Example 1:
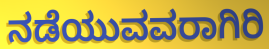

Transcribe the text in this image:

ನಡೆಯುವವರಾಗಿರಿ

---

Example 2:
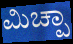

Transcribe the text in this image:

ಮಿಚ್ಪಾ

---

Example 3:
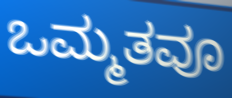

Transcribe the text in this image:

ಒಮ್ಮತವೂ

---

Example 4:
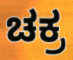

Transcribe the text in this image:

ಚಕ್ರ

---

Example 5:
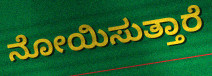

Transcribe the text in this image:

ನೋಯಿಸುತ್ತಾರೆ